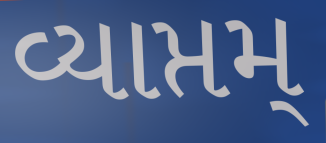
વ્યાપ્તમ્